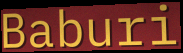
Baburi